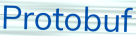
Protobuf